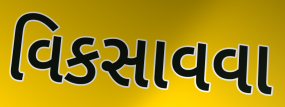
વિકસાવવા